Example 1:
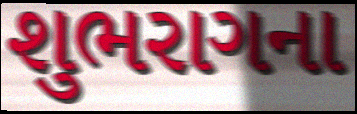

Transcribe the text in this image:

શુભરાગના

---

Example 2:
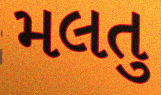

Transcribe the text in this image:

મલતુ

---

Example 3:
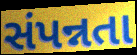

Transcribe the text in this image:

સંપન્નતા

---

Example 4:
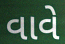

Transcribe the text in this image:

વાવે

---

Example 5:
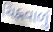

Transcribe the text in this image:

ચિહ્નવાળું